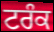
ਟਰੰਕ